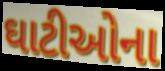
ઘાટીઓના